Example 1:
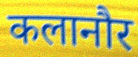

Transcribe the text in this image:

कलानौर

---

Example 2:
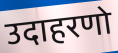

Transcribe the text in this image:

उदाहरणो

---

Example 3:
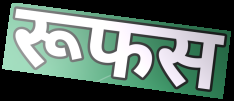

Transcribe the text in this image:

रूफस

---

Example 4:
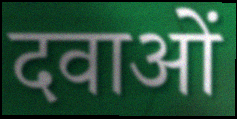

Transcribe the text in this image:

दवाओं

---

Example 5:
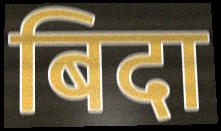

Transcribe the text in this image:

बिदा